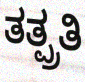
ತತ್ಪ್ರತಿ